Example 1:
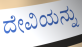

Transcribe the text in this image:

ದೇವಿಯನ್ನು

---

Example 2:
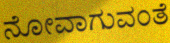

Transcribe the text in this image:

ನೋವಾಗುವಂತೆ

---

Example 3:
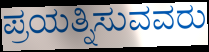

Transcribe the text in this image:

ಪ್ರಯತ್ನಿಸುವವರು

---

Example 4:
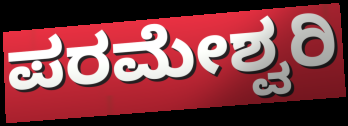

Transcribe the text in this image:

ಪರಮೇಶ್ವರಿ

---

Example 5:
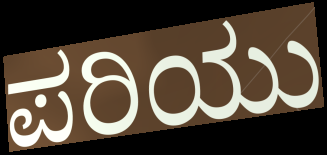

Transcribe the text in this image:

ಪರಿಯು